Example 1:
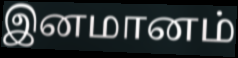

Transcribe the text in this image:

இனமானம்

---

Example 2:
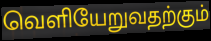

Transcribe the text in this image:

வெளியேறுவதற்கும்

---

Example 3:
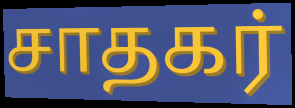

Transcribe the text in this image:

சாதகர்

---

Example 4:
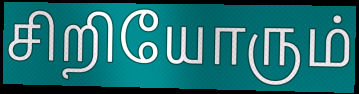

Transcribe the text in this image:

சிறியோரும்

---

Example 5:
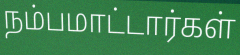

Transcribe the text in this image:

நம்பமாட்டார்கள்